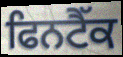
ਫਿਨਟੈੱਕ